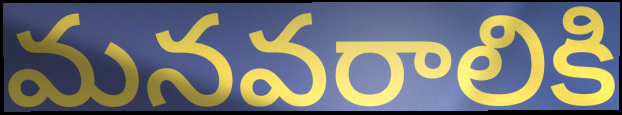
మనవరాలికి